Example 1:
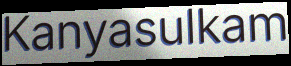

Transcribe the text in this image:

Kanyasulkam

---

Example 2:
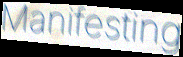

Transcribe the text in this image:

Manifesting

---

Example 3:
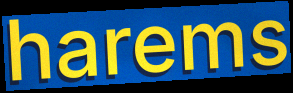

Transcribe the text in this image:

harems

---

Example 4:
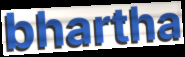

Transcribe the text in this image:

bhartha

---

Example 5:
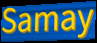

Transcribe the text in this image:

Samay